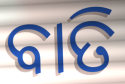
ବାତି